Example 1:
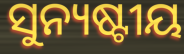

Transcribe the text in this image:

ସୁନ୍ୟଷ୍ଟୀୟ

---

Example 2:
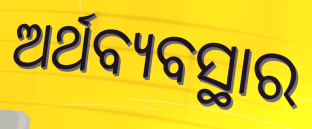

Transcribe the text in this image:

ଅର୍ଥବ୍ୟବସ୍ଥାର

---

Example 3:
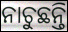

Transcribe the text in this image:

ନାଚୁଛନ୍ତି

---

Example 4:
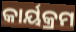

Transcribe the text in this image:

କାର୍ୟକ୍ରମ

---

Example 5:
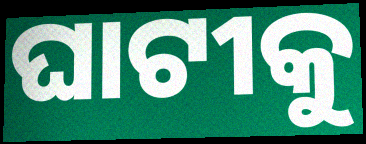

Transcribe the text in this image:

ଘାଟୀକୁ